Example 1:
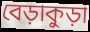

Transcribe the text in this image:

বেড়াকুড়া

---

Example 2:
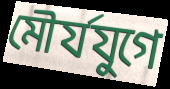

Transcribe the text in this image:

মৌর্যযুগে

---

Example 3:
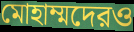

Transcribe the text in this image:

মোহাম্মদেরও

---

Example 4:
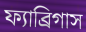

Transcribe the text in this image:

ফ্যাব্রিগাস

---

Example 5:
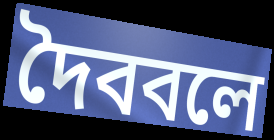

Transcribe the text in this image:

দৈববলে